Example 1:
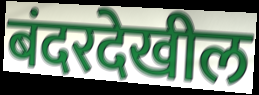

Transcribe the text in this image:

बंदरदेखील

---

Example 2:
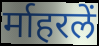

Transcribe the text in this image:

र्माहरलें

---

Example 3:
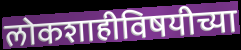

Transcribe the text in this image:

लोकशाहीविषयीच्या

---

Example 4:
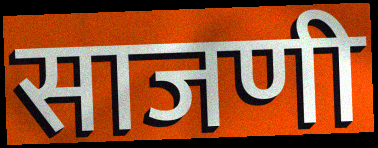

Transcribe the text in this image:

साजणी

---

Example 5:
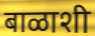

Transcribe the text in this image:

बाळाशी